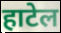
हाटेल